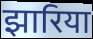
झारिया